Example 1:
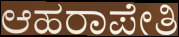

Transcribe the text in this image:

ಆಹರಾಪೇತಿ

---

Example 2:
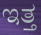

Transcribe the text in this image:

ಇತ್ತ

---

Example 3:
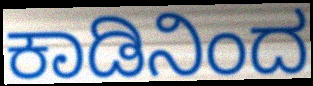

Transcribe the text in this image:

ಕಾಡಿನಿಂದ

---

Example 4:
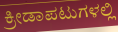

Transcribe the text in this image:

ಕ್ರೀಡಾಪಟುಗಳಲ್ಲಿ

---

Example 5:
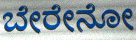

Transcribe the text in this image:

ಬೇರೇನೋ